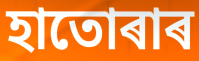
হাতোৰাৰ